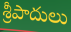
శ్రీపాదులు